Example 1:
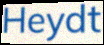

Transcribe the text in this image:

Heydt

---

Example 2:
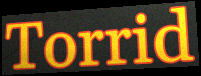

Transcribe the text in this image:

Torrid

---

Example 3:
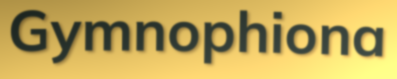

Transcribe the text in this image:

Gymnophiona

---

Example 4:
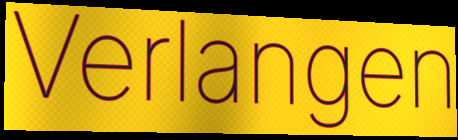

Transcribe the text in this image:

Verlangen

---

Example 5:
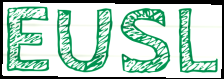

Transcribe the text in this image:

EUSL